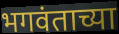
भगवंताच्या